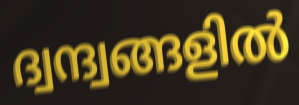
ദ്വന്ദ്വങ്ങളിൽ